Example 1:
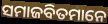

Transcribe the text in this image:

ସମାଜବିତମାନେ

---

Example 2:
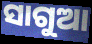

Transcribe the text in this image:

ସାଗୁଆ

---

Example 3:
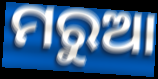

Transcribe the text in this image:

ମରୁଆ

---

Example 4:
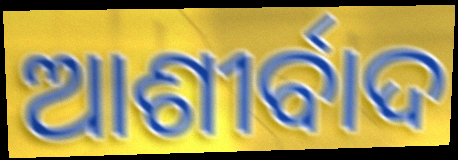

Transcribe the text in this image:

ଆଶୀର୍ବାଦ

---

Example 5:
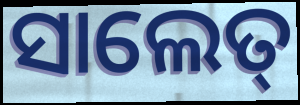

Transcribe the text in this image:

ସାଲେତ୍